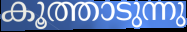
കൂത്താടുന്നു